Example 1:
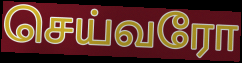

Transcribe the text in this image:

செய்வரோ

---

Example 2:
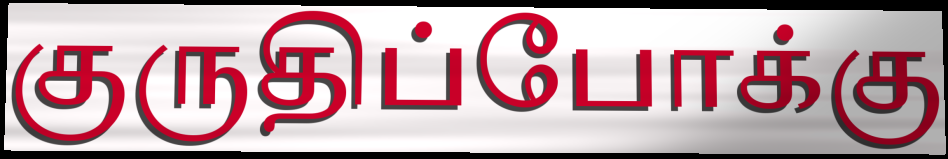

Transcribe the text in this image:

குருதிப்போக்கு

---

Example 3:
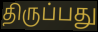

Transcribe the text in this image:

திருப்பது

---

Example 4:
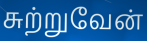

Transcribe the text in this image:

சுற்றுவேன்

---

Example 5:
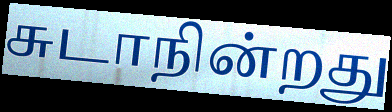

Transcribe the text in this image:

சுடாநின்றது